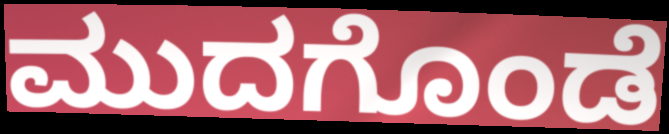
ಮುದಗೊಂಡೆ